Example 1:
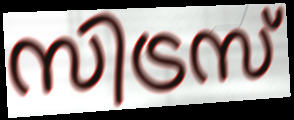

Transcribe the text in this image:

സിട്രസ്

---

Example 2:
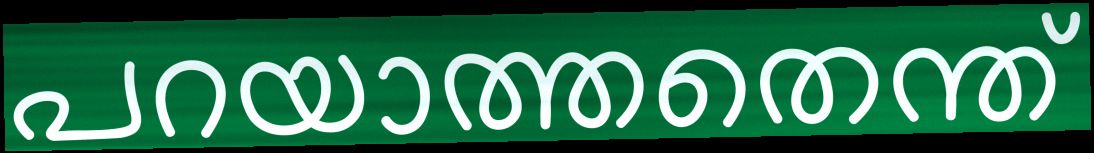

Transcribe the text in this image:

പറയാത്തതെന്ത്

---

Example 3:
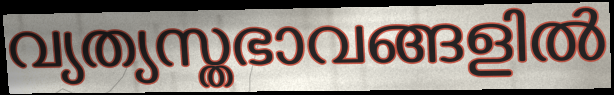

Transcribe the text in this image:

വ്യത്യസ്തഭാവങ്ങളിൽ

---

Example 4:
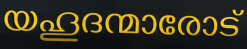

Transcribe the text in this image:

യഹൂദന്മാരോട്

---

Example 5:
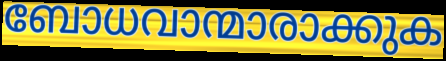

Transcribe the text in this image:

ബോധവാന്മാരാക്കുക